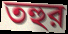
তহুর